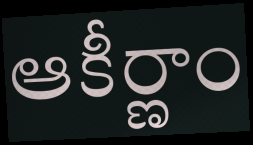
ఆకీర్ణాం